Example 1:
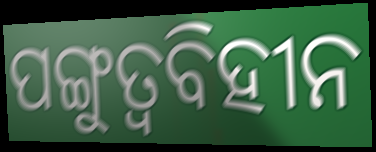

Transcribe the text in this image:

ପଙ୍ଗୁତ୍ୱବିହୀନ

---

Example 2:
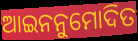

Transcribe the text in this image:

ଆଇନନୁମୋଦିତ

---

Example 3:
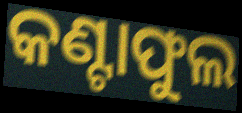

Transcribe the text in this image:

କଣ୍ଟାଫୁଲ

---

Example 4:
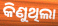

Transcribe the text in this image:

କିଣୁଥିଲା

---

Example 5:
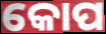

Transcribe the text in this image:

କୋପ